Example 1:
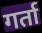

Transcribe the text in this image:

गर्ता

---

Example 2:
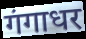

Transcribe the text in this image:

गंगाधर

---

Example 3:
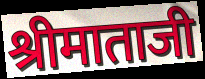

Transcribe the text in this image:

श्रीमाताजी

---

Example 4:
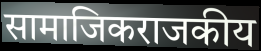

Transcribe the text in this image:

सामाजिकराजकीय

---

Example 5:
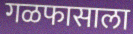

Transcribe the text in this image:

गळफासाला